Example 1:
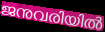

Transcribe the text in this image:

ജനുവരിയിൽ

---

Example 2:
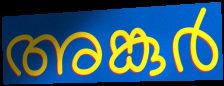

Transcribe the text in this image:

അങ്കുർ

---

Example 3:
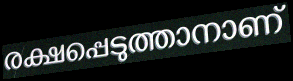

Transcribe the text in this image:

രക്ഷപ്പെടുത്താനാണ്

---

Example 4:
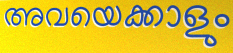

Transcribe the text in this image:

അവയെക്കാളും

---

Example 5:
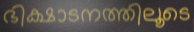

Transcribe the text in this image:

ഭിക്ഷാടനത്തിലൂടെ